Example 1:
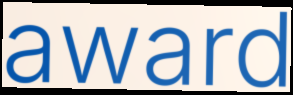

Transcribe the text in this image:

award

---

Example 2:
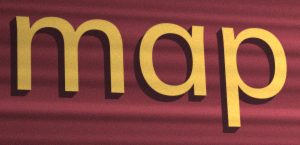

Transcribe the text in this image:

map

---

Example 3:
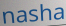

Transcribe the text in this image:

nasha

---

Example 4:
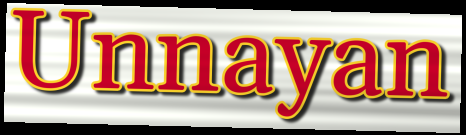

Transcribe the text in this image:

Unnayan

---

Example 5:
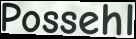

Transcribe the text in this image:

Possehl